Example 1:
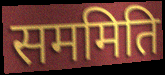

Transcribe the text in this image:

सममिति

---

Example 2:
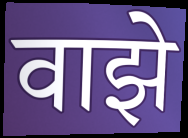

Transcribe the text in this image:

वाझे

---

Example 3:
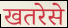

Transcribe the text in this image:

खतरेसे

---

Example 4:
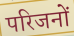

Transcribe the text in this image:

परिजनों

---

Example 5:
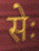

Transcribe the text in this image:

सेः